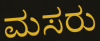
ಮಸರು